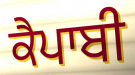
ਕੈਪਾਬੀ